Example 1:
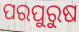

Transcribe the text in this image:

ପରପୁରୁଷ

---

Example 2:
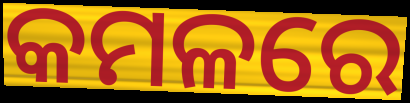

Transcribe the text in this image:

କମଳରେ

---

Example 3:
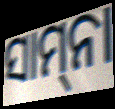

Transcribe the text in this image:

ସାମ୍‌ନା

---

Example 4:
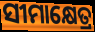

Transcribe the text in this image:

ସୀମାକ୍ଷେତ୍ର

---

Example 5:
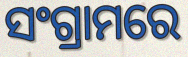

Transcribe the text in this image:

ସଂଗ୍ରାମରେ